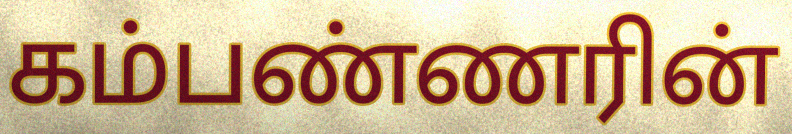
கம்பண்ணரின்